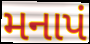
મનાપં